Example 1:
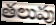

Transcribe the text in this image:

తలుపు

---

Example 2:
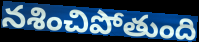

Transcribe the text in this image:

నశించిపోతుంది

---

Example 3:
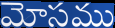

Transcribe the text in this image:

మోసము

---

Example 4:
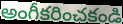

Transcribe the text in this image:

అంగీకరించకండి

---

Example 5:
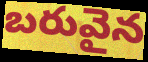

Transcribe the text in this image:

బరువైన